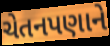
ચેતનપણાને